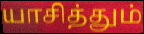
யாசித்தும்